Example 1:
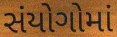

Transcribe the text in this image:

સંયોગોમાં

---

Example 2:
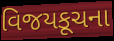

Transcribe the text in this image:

વિજયકૂચના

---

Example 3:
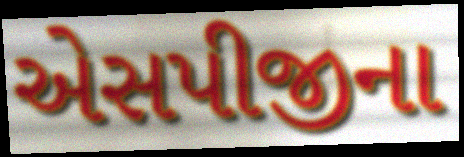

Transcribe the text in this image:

એસપીજીના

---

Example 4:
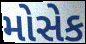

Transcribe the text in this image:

મોસેક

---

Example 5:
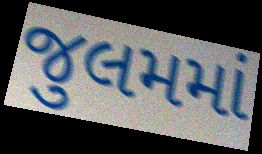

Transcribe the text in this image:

જુલમમાં